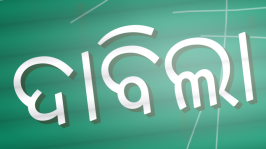
ଦାବିଲା